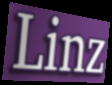
Linz